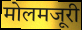
मोलमजूरी